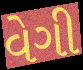
વેગી